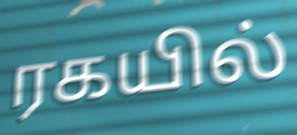
ரகயில்